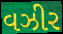
વઝીર